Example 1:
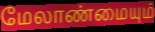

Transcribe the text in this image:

மேலாண்மையும்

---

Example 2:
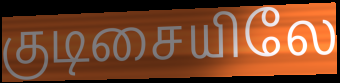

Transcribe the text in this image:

குடிசையிலே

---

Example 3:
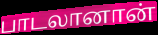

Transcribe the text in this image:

பாடலானான்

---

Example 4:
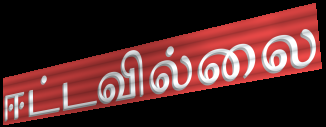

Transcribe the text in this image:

ஈட்டவில்லை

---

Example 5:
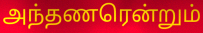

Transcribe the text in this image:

அந்தணரென்றும்